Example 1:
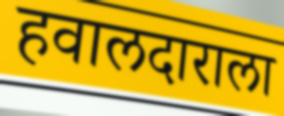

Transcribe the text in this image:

हवालदाराला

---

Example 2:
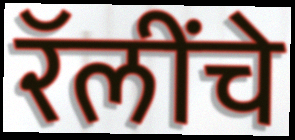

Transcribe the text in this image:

रॅलींचे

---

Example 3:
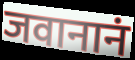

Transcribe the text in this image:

जवानानं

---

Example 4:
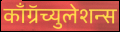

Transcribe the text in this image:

काँग्रॅच्युलेशन्स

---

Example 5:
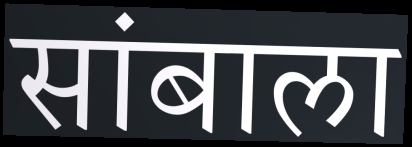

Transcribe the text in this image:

सांबाला